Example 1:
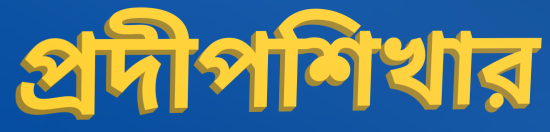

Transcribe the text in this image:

প্রদীপশিখার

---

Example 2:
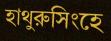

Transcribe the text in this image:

হাথুরুসিংহে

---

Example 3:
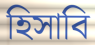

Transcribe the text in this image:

হিসাবি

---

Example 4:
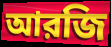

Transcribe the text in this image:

আরজি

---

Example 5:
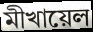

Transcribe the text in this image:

মীখায়েল